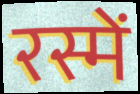
रस्‍में